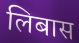
लिबास